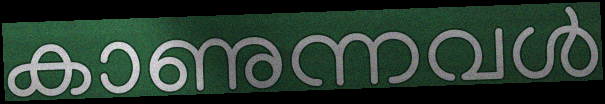
കാണുന്നവൾ